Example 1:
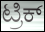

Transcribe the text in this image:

ಟ್ರಿಕ್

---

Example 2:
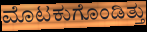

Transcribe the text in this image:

ಮೊಟಕುಗೊಂಡಿತ್ತು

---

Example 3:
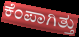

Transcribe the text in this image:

ಕೆಂಪಾಗಿತ್ತು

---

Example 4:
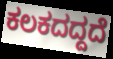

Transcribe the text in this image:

ಕಲಕದದ್ದದೆ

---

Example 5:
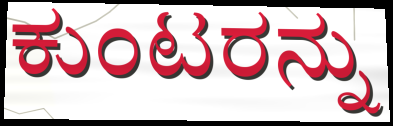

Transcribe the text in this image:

ಕುಂಟರನ್ನು